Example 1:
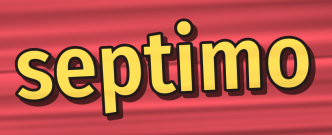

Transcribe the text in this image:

septimo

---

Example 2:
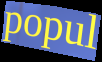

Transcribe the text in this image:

popul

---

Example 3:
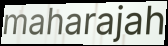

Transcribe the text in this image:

maharajah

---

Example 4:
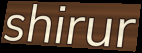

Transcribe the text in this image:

shirur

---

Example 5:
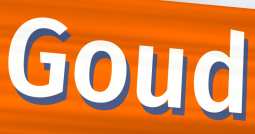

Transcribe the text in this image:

Goud